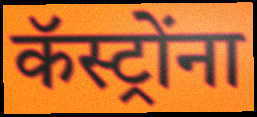
कॅस्ट्रोंना